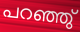
പറഞ്ഞു്